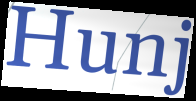
Hunj